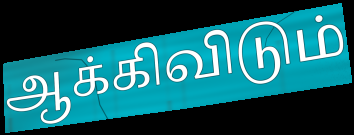
ஆக்கிவிடும்